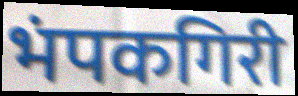
भंपकगिरी